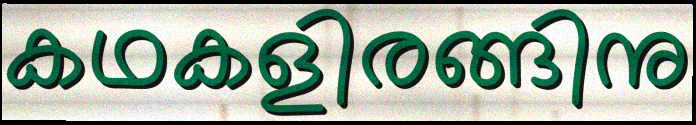
കഥകളിരങ്ങിനു